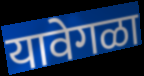
यावेगळा